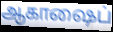
ஆகாஷைப்